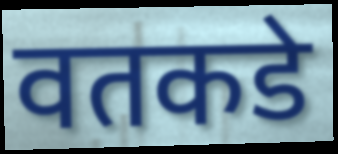
वतकडे